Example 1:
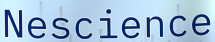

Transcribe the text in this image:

Nescience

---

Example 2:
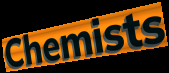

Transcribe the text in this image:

Chemists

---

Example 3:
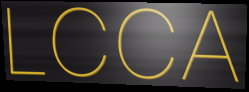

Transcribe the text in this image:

LCCA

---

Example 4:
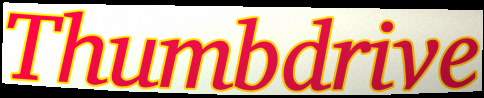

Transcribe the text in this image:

Thumbdrive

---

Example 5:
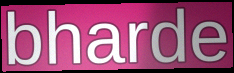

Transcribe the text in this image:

bharde